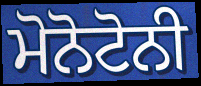
ਮੋਨੋਟੋਨੀ